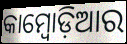
କାମ୍ବୋଡ଼ିଆର